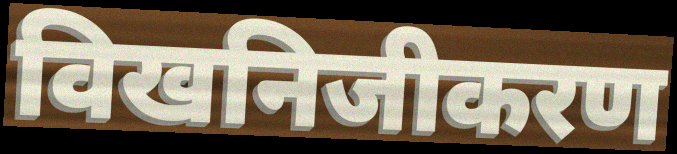
विखनिजीकरण